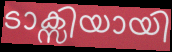
ടാക്സിയായി